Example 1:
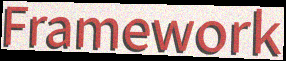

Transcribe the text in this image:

Framework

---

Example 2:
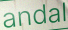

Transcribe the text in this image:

andal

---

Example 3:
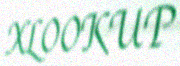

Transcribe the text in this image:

XLOOKUP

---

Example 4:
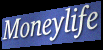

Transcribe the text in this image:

Moneylife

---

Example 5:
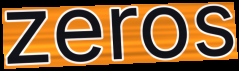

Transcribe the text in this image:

zeros